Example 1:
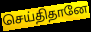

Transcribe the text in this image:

செய்திதானே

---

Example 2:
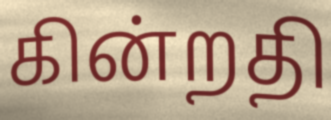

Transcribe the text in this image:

கின்றதி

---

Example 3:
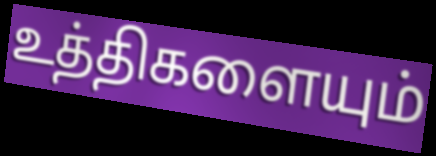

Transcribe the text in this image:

உத்திகளையும்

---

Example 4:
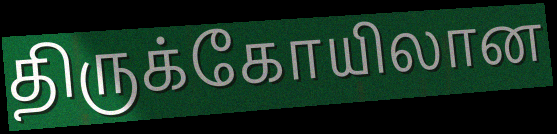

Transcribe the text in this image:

திருக்கோயிலான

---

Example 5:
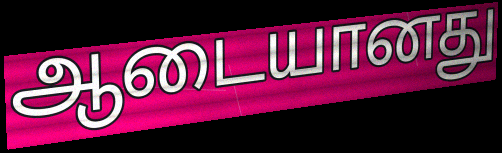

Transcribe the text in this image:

ஆடையானது